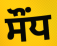
ਸੌਂਧ